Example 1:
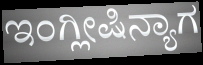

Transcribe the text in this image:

ಇಂಗ್ಲೀಷಿನ್ಯಾಗ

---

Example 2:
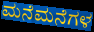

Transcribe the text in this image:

ಮನೆಮನೆಗಳ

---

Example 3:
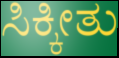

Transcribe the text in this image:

ಸಿಕ್ಕೀತು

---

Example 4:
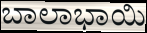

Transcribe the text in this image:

ಬಾಲಾಭಾಯಿ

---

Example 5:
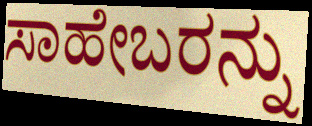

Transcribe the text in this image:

ಸಾಹೇಬರನ್ನು